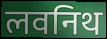
लवनिथ